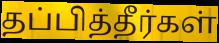
தப்பித்தீர்கள்